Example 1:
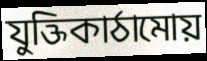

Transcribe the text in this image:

যুক্তিকাঠামোয়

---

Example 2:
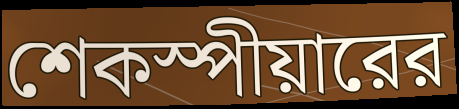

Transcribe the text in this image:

শেকস্পীয়ারের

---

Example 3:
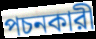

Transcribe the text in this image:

পচনকারী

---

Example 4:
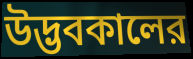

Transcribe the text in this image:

উদ্ভবকালের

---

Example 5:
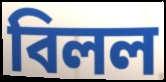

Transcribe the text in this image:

বিলল